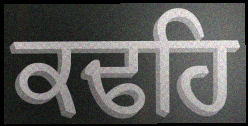
ਕਢਹਿ